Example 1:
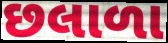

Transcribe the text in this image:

છલાળા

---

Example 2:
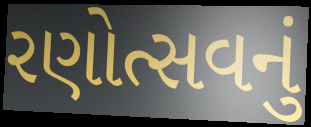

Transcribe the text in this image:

રણોત્સવનું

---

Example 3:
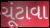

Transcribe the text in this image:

ચૂંટાવા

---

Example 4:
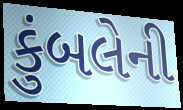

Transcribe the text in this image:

કુંબલેની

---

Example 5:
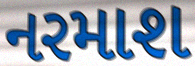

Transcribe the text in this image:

નરમાશ